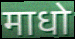
माधो